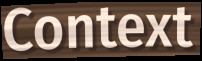
Context